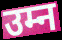
उम्न